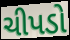
ચીપડો